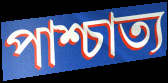
পাশ্চাত্য